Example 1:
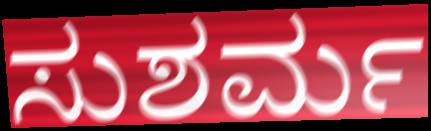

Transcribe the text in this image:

ಸುಶರ್ಮ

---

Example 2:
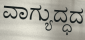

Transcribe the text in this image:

ವಾಗ್ಯುದ್ಧದ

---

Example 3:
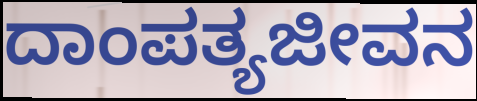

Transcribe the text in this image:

ದಾಂಪತ್ಯಜೀವನ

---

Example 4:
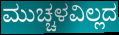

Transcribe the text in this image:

ಮುಚ್ಚಳವಿಲ್ಲದ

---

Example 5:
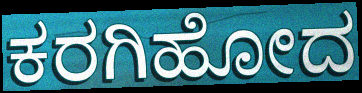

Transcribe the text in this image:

ಕರಗಿಹೋದ